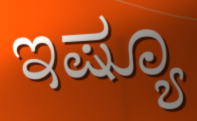
ಇಷ್ಯೂ